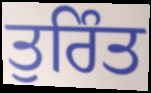
ਤੁਰਿੰਤ